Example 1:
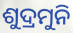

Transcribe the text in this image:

ଶୁଦ୍ରମୁନି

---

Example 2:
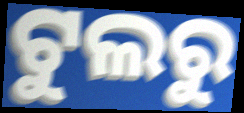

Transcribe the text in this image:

ଟୁଲରୁ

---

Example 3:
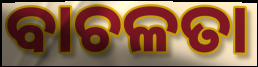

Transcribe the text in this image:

ବାଚଳତା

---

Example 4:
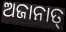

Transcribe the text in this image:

ଅଜାନାତ୍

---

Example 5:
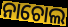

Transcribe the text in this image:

ନାଚୋଲ